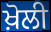
ਖ਼ੋਲੀ